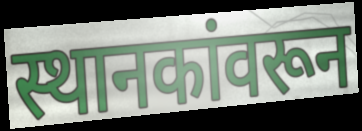
स्थानकांवरून